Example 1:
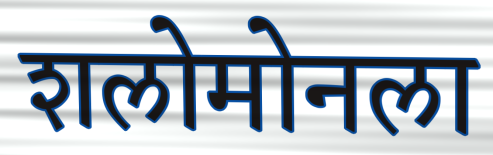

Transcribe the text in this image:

शलोमोनला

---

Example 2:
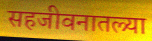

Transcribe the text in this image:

सहजीवनातल्या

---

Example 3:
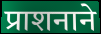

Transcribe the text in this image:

प्राशनाने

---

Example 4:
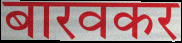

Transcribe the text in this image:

बारवकर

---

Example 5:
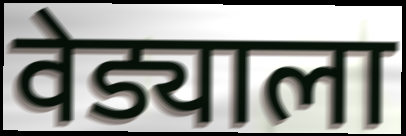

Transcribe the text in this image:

वेड्याला